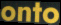
onto